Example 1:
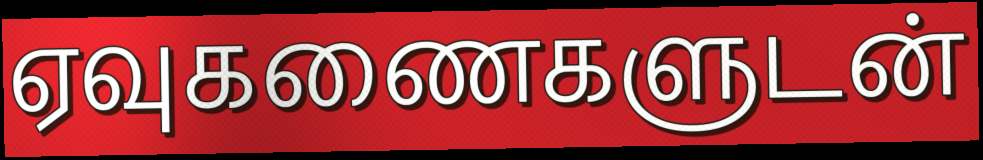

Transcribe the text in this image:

ஏவுகணைகளுடன்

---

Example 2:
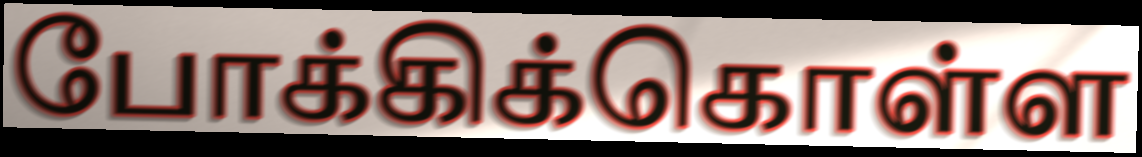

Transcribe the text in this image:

போக்கிக்கொள்ள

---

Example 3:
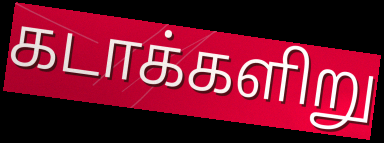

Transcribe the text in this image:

கடாக்களிறு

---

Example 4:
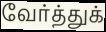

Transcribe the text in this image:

வேர்த்துக்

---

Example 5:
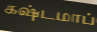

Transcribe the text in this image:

கஷ்டமாப்